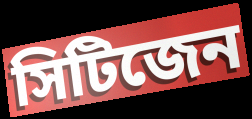
সিটিজেন